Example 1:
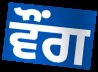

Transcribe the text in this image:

ਵੌਂਗ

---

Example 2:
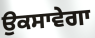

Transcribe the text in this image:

ਉਕਸਾਵੇਗਾ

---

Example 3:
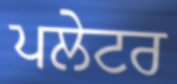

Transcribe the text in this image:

ਪਲੇਟਰ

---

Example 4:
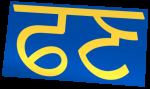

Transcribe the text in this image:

ਫਣ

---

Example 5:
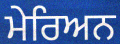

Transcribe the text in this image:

ਮੇਰਿਅਨ